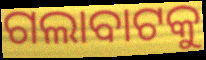
ଗଲାବାଟକୁ